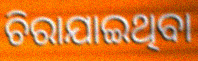
ଚିରାଯାଇଥିବା